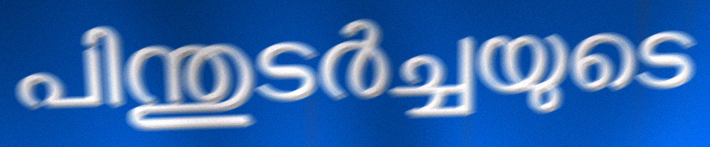
പിന്തുടർച്ചയുടെ